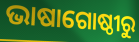
ଭାଷାଗୋଷ୍ଠୀରୁ